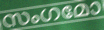
സംഗമോ